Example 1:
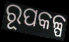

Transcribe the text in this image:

ରୂପକଳ୍ପ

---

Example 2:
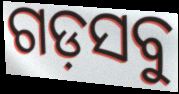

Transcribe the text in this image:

ଗଡ଼ସବୁ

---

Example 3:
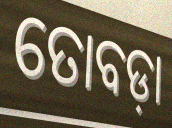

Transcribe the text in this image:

ତୋବଡ଼ା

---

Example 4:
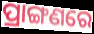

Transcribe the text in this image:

ପ୍ରାଙ୍ଗଣରେ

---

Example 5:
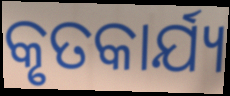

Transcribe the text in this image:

କୃତକାର୍ଯ୍ୟ